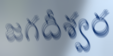
జగదీశ్వర